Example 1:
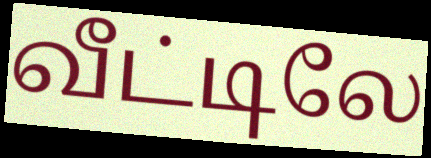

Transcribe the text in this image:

வீட்டிலே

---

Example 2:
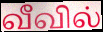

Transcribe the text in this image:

வீவில்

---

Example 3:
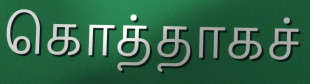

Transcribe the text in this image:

கொத்தாகச்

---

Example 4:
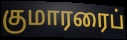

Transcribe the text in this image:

குமாரரைப்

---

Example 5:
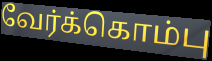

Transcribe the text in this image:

வேர்க்கொம்பு